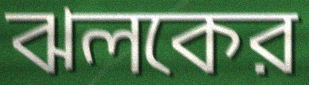
ঝলকের